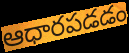
ఆధారపడడం